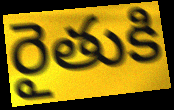
రైతుకి